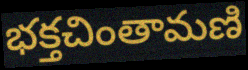
భక్తచింతామణి